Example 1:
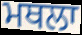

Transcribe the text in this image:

ਮਥਲਾ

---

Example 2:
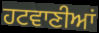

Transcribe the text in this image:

ਹਟਵਾਣੀਆਂ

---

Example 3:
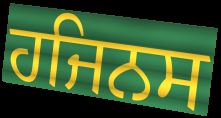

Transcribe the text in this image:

ਹਜਿਨਸ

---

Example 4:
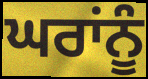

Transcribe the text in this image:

ਘਰਾਂਨੂੰ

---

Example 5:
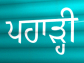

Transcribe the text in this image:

ਪਹਾੜ੍ਹੀ